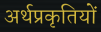
अर्थप्रकृतियों